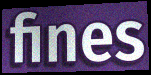
fines